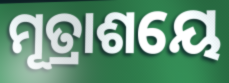
ମୂତ୍ରାଶୟେ